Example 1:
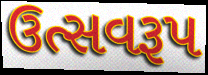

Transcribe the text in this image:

ઉત્સવરૂપ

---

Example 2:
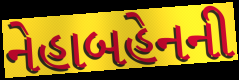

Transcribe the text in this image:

નેહાબહેનની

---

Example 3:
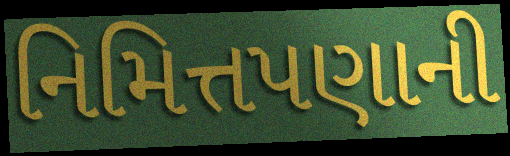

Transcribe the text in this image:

નિમિત્તપણાની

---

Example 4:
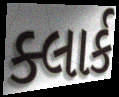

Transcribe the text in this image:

ક્લાર્ક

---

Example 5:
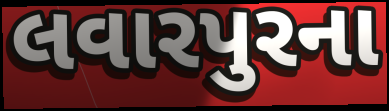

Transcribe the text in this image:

લવારપુરના